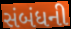
સંબંધની